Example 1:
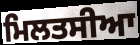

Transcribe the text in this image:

ਮਿਲਤਸੀਆ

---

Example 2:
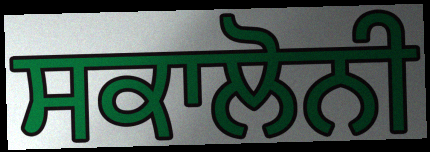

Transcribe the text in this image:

ਸਕਾਲੋਨੀ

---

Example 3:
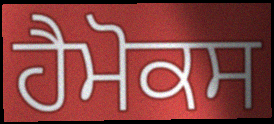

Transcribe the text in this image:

ਹੈਮੋਕਸ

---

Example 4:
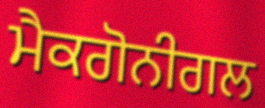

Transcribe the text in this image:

ਮੈਕਗੋਨੀਗਲ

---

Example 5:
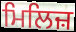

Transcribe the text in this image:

ਮਿਲਿਜ਼